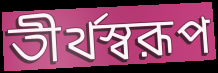
তীর্থস্বরূপ